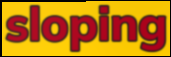
sloping